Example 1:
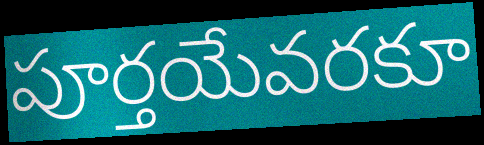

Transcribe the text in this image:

పూర్తయేవరకూ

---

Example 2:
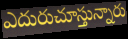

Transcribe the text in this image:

ఎదురుచూస్తున్నారు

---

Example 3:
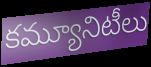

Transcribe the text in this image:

కమ్యూనిటీలు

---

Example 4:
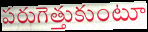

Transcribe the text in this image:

పరుగెత్తుకుంటూ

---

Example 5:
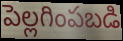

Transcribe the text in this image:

పెల్లగింపబడి